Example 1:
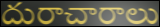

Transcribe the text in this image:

దురాచారాలు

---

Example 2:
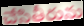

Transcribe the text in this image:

చేసితీరును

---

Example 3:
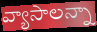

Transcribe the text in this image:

వ్యాసాలన్నా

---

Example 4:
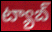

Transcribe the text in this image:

ట్యాబ్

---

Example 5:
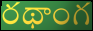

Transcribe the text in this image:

రథాంగ